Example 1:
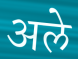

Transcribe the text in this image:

अले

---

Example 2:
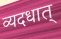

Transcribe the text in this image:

व्यदधात्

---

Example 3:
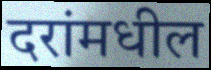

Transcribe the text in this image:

दरांमधील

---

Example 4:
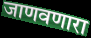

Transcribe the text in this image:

जाणवणारा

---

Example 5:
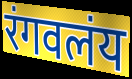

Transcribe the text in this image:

रंगवलंय